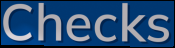
Checks